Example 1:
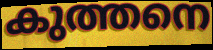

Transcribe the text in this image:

കുത്തനെ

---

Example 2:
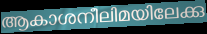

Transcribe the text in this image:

ആകാശനീലിമയിലേക്കു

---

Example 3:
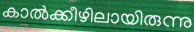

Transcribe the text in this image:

കാൽക്കീഴിലായിരുന്നു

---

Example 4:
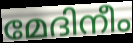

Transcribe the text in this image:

മേദിനീം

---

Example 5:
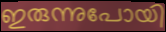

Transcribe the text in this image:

ഇരുന്നുപോയി